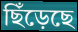
ছিঁড়েছে